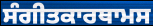
ਸੰਗੀਤਕਾਰਥਾਮਸ